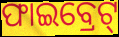
ଫାଇବ୍ରେଟ୍